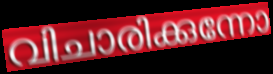
വിചാരിക്കുന്നോ